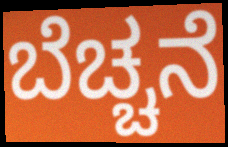
ಬೆಚ್ಚನೆ